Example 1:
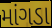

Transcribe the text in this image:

માંગડા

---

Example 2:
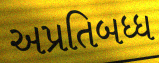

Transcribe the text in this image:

અપ્રતિબધ્ધ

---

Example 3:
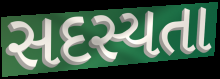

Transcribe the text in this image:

સદસ્યતા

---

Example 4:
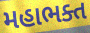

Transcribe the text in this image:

મહાભક્ત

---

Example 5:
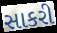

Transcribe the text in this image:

સાકરી